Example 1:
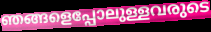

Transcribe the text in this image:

ഞങ്ങളെപ്പോലുള്ളവരുടെ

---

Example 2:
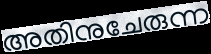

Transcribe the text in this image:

അതിനുചേരുന്ന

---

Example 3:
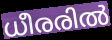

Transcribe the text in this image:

ധീരരിൽ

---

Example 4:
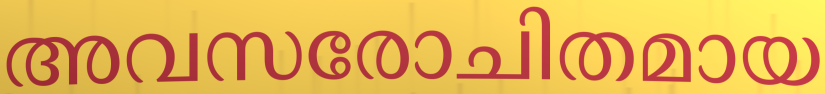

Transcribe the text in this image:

അവസരോചിതമായ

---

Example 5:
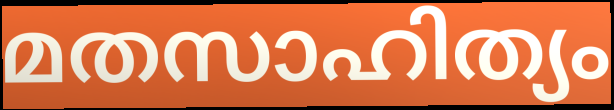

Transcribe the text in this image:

മതസാഹിത്യം